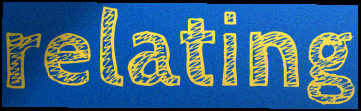
relating